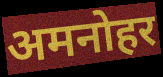
अमनोहर